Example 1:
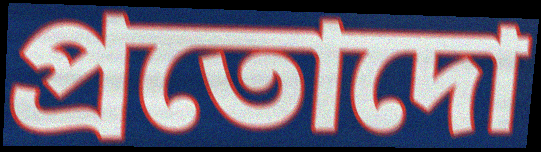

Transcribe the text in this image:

প্রতোদো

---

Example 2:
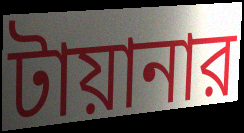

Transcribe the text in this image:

টায়ানার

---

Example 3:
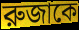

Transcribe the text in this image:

রুজাকে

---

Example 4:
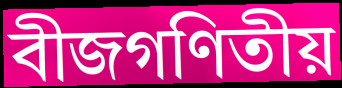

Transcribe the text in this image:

বীজগণিতীয়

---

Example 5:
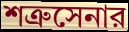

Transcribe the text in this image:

শত্রুসেনার